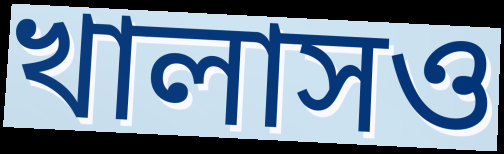
খালাসও